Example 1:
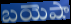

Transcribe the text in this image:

బయెషా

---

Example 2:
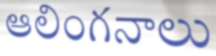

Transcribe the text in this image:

ఆలింగనాలు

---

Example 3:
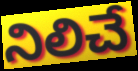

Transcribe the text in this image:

నిలిచే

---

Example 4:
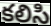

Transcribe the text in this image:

కలిసి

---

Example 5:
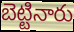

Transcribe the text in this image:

బెట్టినారు